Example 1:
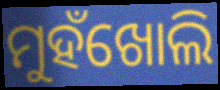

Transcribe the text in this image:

ମୁହଁଖୋଲି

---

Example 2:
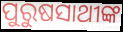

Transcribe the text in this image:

ପୁରୁଷସାଥୀଙ୍କ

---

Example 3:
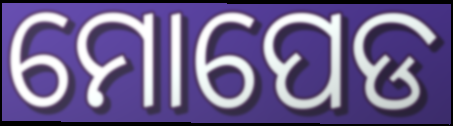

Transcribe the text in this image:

ମୋପେଡ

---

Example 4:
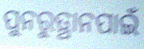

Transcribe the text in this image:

ପୁନରୁତ୍ଥାନପାଇଁ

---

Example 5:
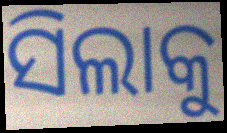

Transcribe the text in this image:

ସିଲାକୁ